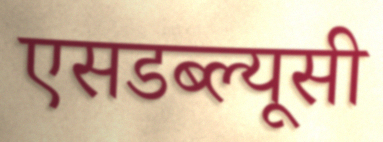
एसडब्ल्यूसी